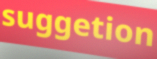
suggetion